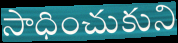
సాధించుకుని